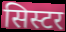
सिस्टर